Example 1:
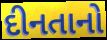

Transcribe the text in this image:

દીનતાનો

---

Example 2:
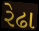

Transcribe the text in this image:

રેઢા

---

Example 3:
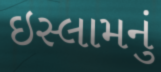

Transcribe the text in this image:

ઇસ્લામનું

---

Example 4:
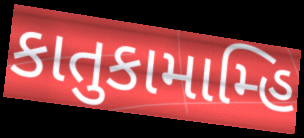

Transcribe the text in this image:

કાતુકામામ્હિ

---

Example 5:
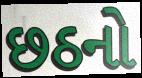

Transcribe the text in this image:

છઠનો